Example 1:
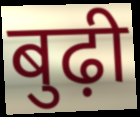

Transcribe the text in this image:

बुढ़ी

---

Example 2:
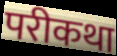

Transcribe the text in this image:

परीकथा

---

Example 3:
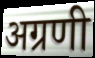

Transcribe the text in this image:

अग्रणी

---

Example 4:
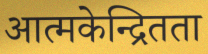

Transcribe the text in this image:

आत्मकेन्द्रितता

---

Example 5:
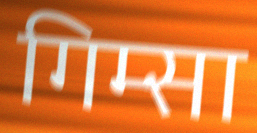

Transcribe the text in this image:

गिम्सा